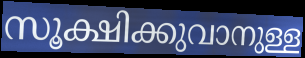
സൂക്ഷിക്കുവാനുള്ള